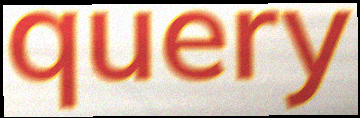
query